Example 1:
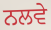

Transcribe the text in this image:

ਨਲਵੇ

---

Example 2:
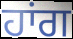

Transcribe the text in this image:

ਹਾਂਗ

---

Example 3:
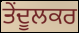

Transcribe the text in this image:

ਤੇਂਦੂਲਕਰ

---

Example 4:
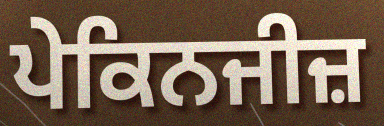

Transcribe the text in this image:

ਪੇਕਿਨਜੀਜ਼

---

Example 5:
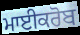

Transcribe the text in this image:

ਮਾਈਕਰੋਬ